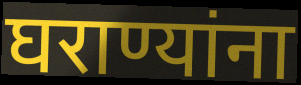
घराण्यांना